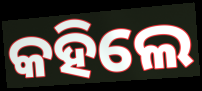
କହିଲେ